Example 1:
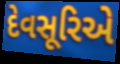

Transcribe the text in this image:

દેવસૂરિએ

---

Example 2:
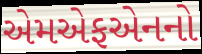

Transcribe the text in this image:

એમએફએનનો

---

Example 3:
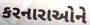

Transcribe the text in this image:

કરનારાઓને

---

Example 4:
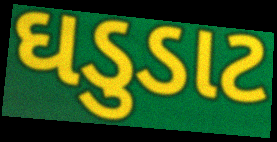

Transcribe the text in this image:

ઘડુડાટ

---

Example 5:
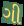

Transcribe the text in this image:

ગી